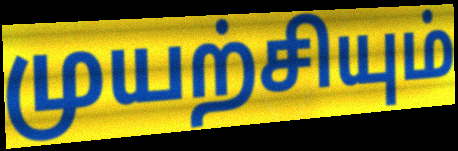
முயற்சியும்